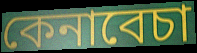
কেনাবেচা